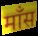
माँस